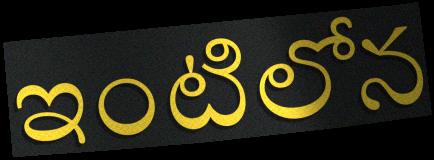
ఇంటిలోన